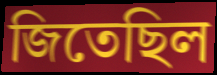
জিতেছিল